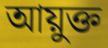
আয়ুক্ত